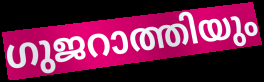
ഗുജറാത്തിയും